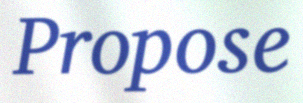
Propose